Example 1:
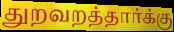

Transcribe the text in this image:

துறவறத்தார்க்கு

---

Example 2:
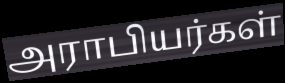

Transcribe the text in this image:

அராபியர்கள்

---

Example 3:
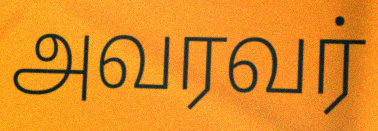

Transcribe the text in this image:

அவரவர்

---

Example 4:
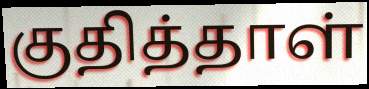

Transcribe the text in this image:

குதித்தாள்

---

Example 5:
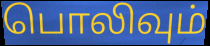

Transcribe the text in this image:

பொலிவும்